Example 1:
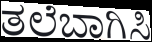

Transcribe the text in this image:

ತಲೆಬಾಗಿಸಿ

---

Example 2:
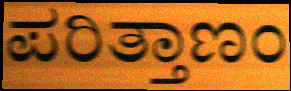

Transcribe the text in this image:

ಪರಿತ್ತಾಣಂ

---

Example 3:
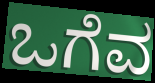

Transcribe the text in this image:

ಒಗೆವ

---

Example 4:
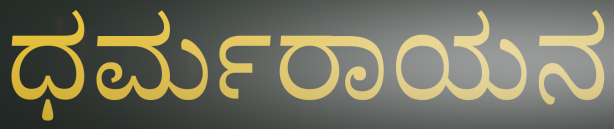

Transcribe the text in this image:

ಧರ್ಮರಾಯನ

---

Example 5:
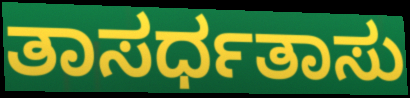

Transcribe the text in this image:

ತಾಸರ್ಧತಾಸು